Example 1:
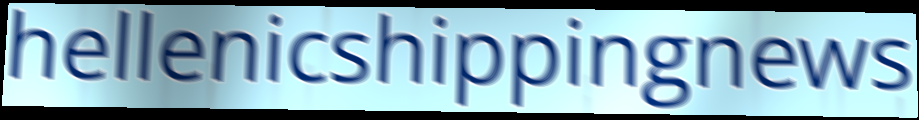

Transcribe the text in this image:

hellenicshippingnews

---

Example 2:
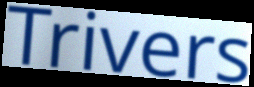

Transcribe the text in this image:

Trivers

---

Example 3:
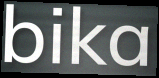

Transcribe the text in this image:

bika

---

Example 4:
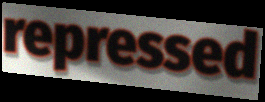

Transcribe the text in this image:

repressed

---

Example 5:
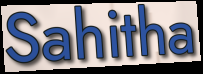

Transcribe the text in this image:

Sahitha